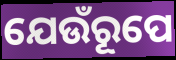
ଯେଉଁରୂପେ